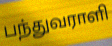
பந்துவராளி